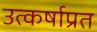
उत्कर्षाप्रत